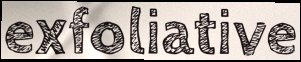
exfoliative